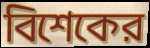
বিশেকের